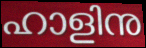
ഹാളിനു